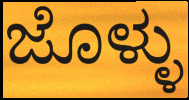
ಜೊಳ್ಳು